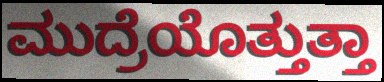
ಮುದ್ರೆಯೊತ್ತುತ್ತಾ